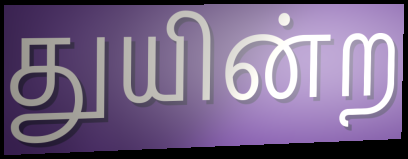
துயின்ற